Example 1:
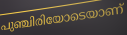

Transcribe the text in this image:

പുഞ്ചിരിയോടെയാണ്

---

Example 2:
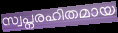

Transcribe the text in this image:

സ്വപ്നരഹിതമായ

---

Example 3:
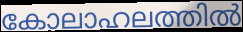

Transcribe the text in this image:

കോലാഹലത്തിൽ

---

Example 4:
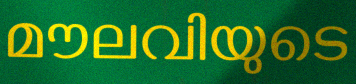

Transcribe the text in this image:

മൗലവിയുടെ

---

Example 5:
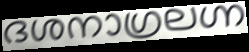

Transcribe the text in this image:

ദശനാഗ്രലഗ്ന